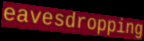
eavesdropping